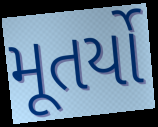
મૂતર્યો